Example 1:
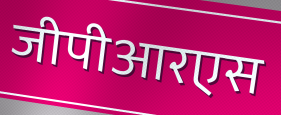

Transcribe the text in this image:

जीपीआरएस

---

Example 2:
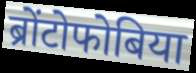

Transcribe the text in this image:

ब्रोंटोफोबिया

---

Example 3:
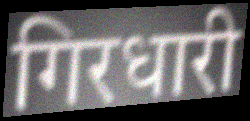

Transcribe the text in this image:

गिरधारी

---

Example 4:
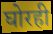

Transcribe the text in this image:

घोरही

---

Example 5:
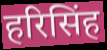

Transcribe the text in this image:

हरिसिंह